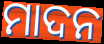
ମାଦନ